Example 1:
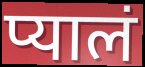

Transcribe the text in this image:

प्यालं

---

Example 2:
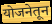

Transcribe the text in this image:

योजनेतून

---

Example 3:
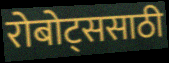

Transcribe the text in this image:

रोबोट्ससाठी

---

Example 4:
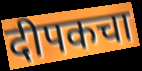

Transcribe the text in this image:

दीपकचा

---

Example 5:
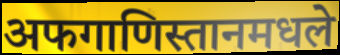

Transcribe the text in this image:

अफगाणिस्तानमधले